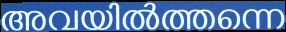
അവയിൽത്തന്നെ